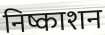
निष्काशन